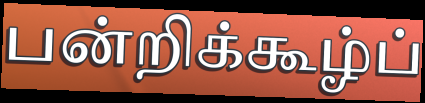
பன்றிக்கூழ்ப்